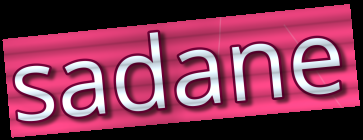
sadane